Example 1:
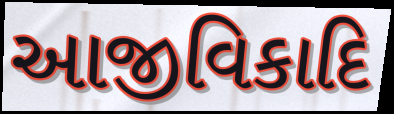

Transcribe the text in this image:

આજીવિકાદિ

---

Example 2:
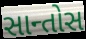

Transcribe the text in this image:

સાન્તોસ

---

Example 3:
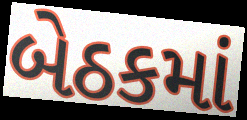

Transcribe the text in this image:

બેઠકમાં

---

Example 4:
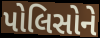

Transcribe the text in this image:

પોલિસોને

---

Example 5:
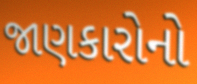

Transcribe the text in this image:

જાણકારોનો